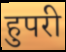
हुपरी